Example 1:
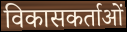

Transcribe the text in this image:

विकासकर्ताओं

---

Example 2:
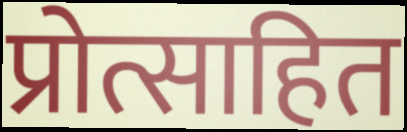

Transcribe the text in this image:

प्रोत्साहित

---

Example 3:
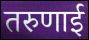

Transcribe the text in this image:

तरुणाई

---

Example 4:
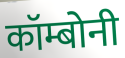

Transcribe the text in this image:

कॉम्बोनी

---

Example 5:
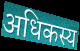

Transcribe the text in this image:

अधिकस्य